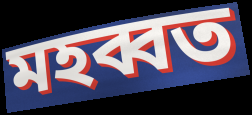
মহব্বত